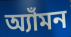
অ্যাঁমন